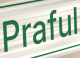
Praful